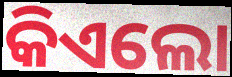
କିଏଲୋ